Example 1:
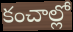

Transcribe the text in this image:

కంచాల్లో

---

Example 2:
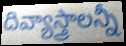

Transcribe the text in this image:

దివ్యాస్త్రాలన్నీ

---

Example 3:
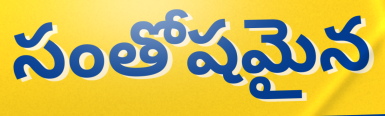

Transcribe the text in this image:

సంతోషమైన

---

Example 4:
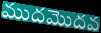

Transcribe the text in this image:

ముదమొదవ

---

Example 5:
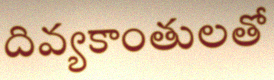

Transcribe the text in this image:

దివ్యకాంతులతో